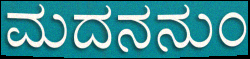
ಮದನನುಂ